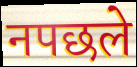
नपछले